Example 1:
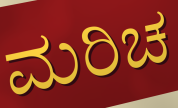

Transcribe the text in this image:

ಮರಿಚ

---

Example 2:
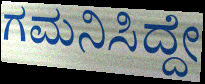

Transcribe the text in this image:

ಗಮನಿಸಿದ್ದೇ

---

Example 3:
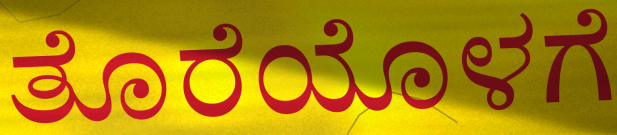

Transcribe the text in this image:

ತೊರೆಯೊಳಗೆ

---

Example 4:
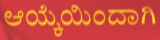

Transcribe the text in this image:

ಆಯ್ಕೆಯಿಂದಾಗಿ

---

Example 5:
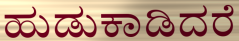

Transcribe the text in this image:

ಹುಡುಕಾಡಿದರೆ